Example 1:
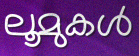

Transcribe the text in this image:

ലൂമുകൾ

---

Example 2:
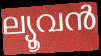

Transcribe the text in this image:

ല്യൂവൻ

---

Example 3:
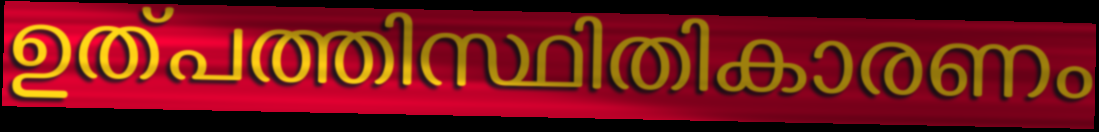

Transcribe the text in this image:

ഉത്പത്തിസ്ഥിതികാരണം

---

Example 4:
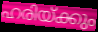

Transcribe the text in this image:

ഹരിയ്ക്കും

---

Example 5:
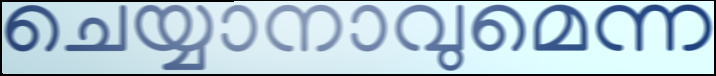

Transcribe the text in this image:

ചെയ്യാനാവുമെന്ന